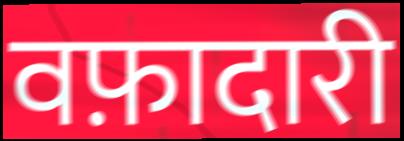
वफ़ादारी